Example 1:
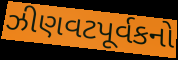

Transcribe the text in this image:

ઝીણવટપૂર્વકનો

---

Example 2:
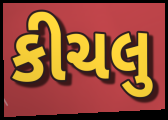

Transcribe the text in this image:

કીચલુ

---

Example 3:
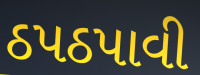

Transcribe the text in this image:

ઠપઠપાવી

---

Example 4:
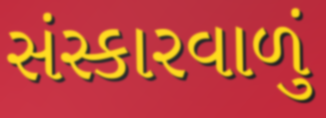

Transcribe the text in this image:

સંસ્કારવાળું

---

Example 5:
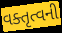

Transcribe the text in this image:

વક્તૃત્વની